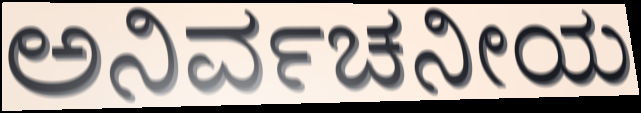
ಅನಿರ್ವಚನೀಯ